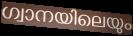
ഗ്വാനയിലെയും